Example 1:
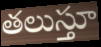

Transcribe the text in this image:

తలుస్తూ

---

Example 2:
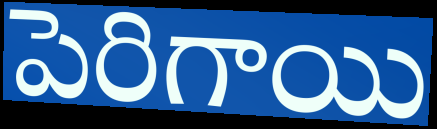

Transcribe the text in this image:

పెరిగాయి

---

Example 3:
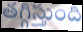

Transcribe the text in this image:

తగ్గిస్తుంది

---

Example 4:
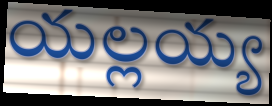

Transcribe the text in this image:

యల్లయ్య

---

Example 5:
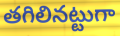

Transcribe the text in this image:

తగిలినట్టుగా